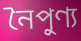
নৈপুণ্য